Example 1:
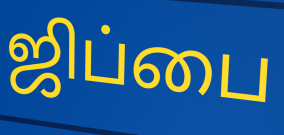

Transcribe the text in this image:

ஜிப்பை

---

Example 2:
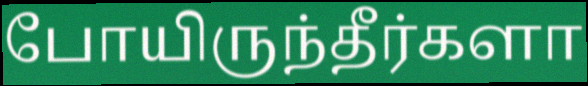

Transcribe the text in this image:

போயிருந்தீர்களா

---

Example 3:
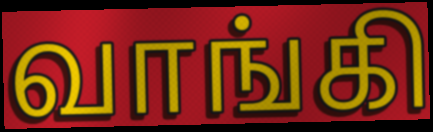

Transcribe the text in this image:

வாங்கி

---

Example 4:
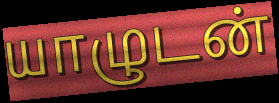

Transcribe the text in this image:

யாழுடன்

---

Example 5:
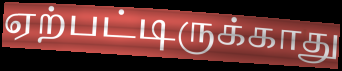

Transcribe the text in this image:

ஏற்பட்டிருக்காது